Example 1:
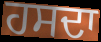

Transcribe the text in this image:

ਹਸਦਾ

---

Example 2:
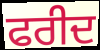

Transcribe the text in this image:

ਫਰੀਦ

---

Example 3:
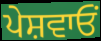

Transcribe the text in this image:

ਪੇਸ਼ਵਾਓਂ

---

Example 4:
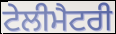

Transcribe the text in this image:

ਟੇਲੀਮੈਟਰੀ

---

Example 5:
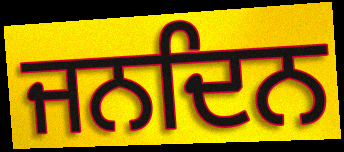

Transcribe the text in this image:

ਜਨਦਿਨ